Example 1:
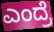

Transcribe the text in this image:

ಎಂದ್ರೆ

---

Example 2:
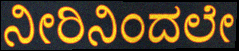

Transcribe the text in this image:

ನೀರಿನಿಂದಲೇ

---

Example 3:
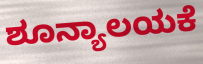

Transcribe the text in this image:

ಶೂನ್ಯಾಲಯಕೆ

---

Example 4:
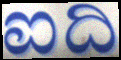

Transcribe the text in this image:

ಐದಿ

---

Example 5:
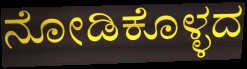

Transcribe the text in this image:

ನೋಡಿಕೊಳ್ಳದ